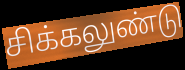
சிக்கலுண்டு